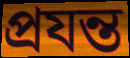
প্রযন্ত